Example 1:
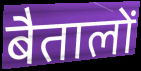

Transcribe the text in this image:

बैतालों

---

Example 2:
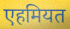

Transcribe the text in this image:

एहमियत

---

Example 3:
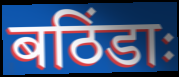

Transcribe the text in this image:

बठिंडाः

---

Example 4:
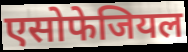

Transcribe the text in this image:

एसोफेजियल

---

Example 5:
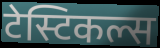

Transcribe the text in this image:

टेस्टिकल्स